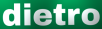
dietro